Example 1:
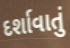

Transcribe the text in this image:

દર્શાવાતું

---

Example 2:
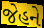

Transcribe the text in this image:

જેહને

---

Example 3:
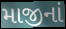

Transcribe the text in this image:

માજીનાં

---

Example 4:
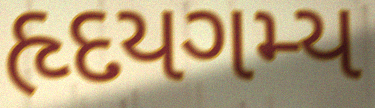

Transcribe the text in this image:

હૃદયગમ્ય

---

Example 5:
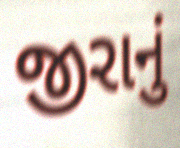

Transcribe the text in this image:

જીરાનું